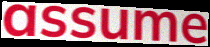
assume